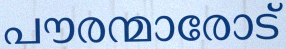
പൗരന്മാരോട്